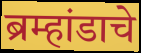
ब्रम्हांडाचे